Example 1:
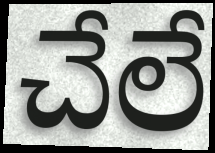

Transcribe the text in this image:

చేలే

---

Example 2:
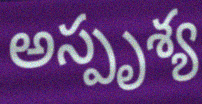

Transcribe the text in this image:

అస్పృశ్య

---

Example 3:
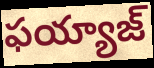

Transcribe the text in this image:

ఫయ్యాజ్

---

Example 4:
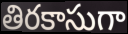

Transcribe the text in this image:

తిరకాసుగా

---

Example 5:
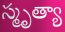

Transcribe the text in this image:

స్మృత్యా